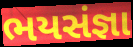
ભયસંજ્ઞા